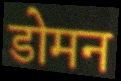
डोमन